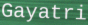
Gayatri